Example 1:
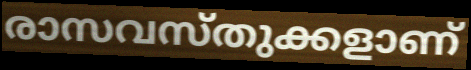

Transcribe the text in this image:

രാസവസ്തുക്കളാണ്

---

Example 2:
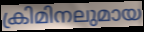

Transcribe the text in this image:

ക്രിമിനലുമായ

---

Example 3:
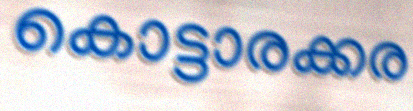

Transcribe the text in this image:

കൊട്ടാരക്കര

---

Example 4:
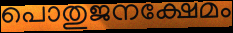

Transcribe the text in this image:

പൊതുജനക്ഷേമം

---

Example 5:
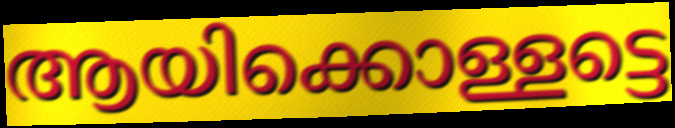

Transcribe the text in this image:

ആയിക്കൊള്ളട്ടെ